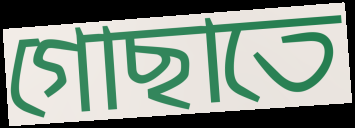
গোছাতে